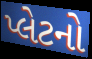
પ્લેટનો